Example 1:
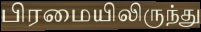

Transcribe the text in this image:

பிரமையிலிருந்து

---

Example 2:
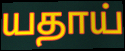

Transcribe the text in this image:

யதாய்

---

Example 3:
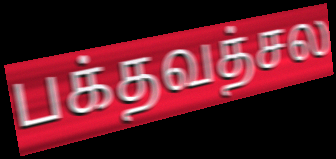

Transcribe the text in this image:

பக்தவத்சல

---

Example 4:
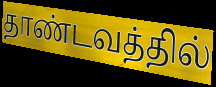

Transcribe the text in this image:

தாண்டவத்தில்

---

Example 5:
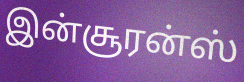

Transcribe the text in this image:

இன்சூரன்ஸ்